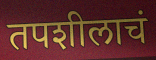
तपशीलाचं